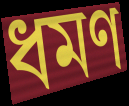
ধমণ